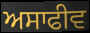
ਅਸਾਫੀਵ